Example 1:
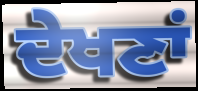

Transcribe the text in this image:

ਦੇਖਣਾਂ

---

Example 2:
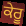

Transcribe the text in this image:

ਕੇਰੂ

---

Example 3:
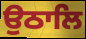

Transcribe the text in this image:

ਉਠਾਲਿ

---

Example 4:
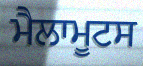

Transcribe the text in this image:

ਮੈਲਾਮੂਟਸ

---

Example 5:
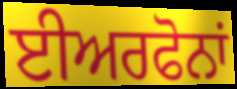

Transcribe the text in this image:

ਈਅਰਫੋਨਾਂ